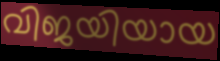
വിജയിയായ